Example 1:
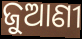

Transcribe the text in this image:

ଜୁଆଣୀ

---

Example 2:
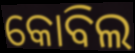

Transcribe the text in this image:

କୋବିଲ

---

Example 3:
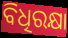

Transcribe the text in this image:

ବିଧିରକ୍ଷା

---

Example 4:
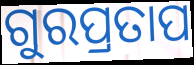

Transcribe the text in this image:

ଗୁରପ୍ରତାପ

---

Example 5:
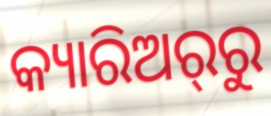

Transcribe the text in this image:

କ୍ୟାରିଅର୍‌ରୁ